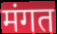
मंगत